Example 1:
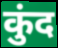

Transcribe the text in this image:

कुंद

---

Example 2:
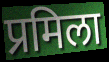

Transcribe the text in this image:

प्रमिला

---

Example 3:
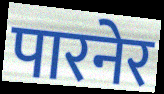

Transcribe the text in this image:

पारनेर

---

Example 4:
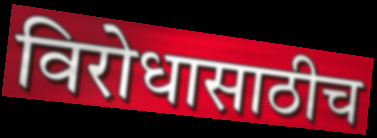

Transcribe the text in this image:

विरोधासाठीच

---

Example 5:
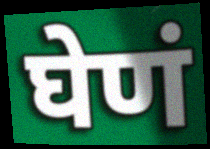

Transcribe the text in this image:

घेणं